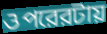
ওপরেরটায়